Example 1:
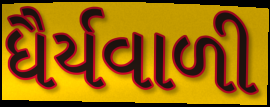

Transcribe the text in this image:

ધૈર્યવાળી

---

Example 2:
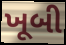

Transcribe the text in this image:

ખૂબી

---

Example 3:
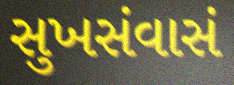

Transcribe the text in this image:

સુખસંવાસં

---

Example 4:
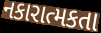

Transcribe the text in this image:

નકારાત્મકતા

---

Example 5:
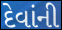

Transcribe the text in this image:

દેવાંની